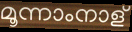
മൂന്നാംനാള്